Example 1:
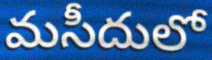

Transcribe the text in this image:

మసీదులో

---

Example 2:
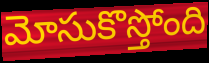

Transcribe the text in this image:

మోసుకొస్తోంది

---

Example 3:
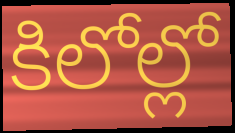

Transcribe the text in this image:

కిలోల్లో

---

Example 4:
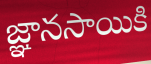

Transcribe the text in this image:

జ్ఞానసాయికి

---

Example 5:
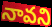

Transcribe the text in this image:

నావని